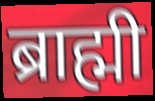
ब्राह्मी